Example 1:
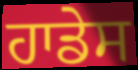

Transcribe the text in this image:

ਹਾਡੇਸ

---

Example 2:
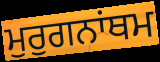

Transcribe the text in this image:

ਮੁਰੁਗਨਾਂਥਮ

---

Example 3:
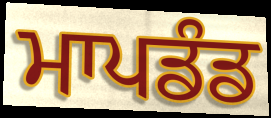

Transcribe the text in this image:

ਮਾਪਡੰਡ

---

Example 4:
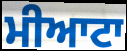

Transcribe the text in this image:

ਮੀਆਟਾ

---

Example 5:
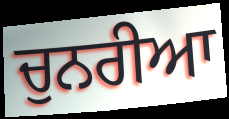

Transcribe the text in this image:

ਚੁਨਰੀਆ